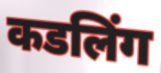
कडलिंग